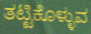
ತಟ್ಟಿಕೊಳ್ಳುವ